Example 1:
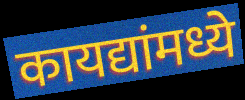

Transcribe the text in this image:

कायद्यांमध्ये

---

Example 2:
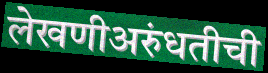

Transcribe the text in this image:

लेखणीअरुंधतीची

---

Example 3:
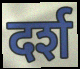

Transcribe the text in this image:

दर्श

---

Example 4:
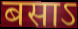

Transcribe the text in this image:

बसाऽ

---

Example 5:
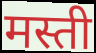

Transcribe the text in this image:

मस्ती